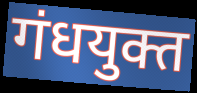
गंधयुक्‍त